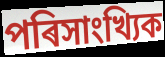
পৰিসাংখ্যিক